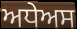
ਅਧੇਅਸ